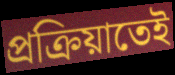
প্রক্রিয়াতেই